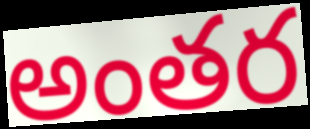
అంతర